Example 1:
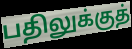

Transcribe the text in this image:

பதிலுக்குத்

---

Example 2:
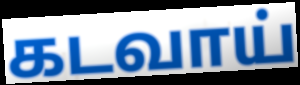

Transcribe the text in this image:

கடவாய்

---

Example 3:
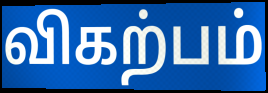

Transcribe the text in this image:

விகற்பம்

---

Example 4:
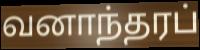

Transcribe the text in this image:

வனாந்தரப்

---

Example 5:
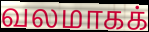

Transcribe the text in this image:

வலமாகக்